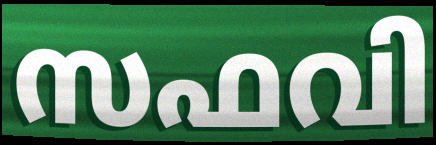
സഫവി